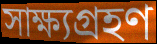
সাক্ষ্যগ্রহণ